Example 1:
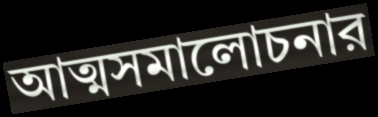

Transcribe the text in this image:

আত্মসমালোচনার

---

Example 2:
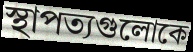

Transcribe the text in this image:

স্থাপত্যগুলোকে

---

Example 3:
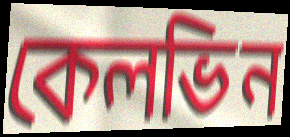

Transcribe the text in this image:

কেলভিন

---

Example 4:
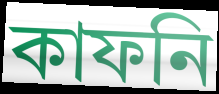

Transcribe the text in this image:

কাফনি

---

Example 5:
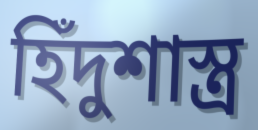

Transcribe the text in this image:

হিঁদুশাস্ত্র